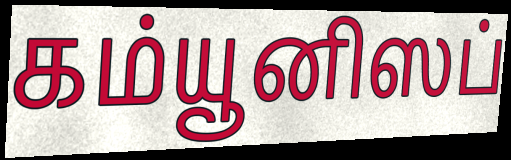
கம்யூனிஸப்